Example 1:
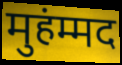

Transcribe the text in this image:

मुहंम्मद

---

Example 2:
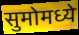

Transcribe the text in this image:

सुमोमध्ये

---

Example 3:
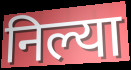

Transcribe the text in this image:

निल्या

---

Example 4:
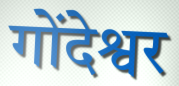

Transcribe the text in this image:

गोंदेश्वर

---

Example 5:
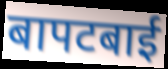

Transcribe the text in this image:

बापटबाई